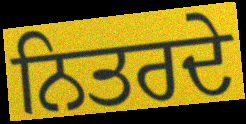
ਨਿਤਰਦੇ